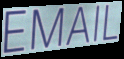
EMAIL